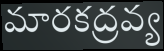
మారకద్రవ్య